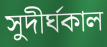
সুদীর্ঘকাল